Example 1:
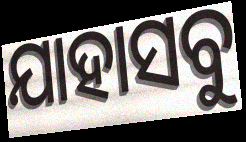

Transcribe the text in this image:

ଯାହାସବୁ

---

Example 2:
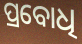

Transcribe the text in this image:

ପ୍ରବୋଧି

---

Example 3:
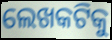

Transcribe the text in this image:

ଲେଖକଟିକୁ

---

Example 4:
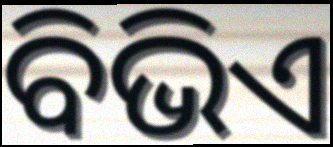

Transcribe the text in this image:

ବିଭିଏ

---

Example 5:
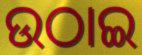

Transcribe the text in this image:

ଉଠାଇ